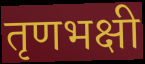
तृणभक्षी